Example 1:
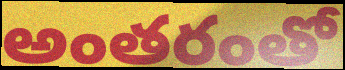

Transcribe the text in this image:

అంతరంతో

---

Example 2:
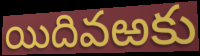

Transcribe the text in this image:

యిదివఱకు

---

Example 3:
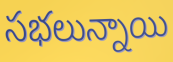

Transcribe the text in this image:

సభలున్నాయి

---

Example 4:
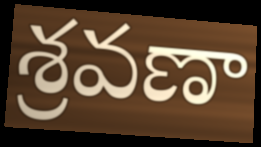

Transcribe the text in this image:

శ్రవణా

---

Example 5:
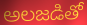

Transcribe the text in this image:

అలజడితో